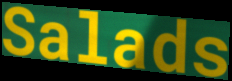
Salads